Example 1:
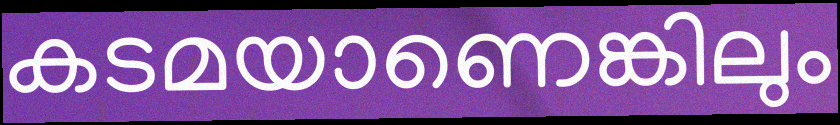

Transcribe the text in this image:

കടമയാണെങ്കിലും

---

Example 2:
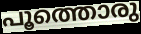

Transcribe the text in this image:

പൂത്തൊരു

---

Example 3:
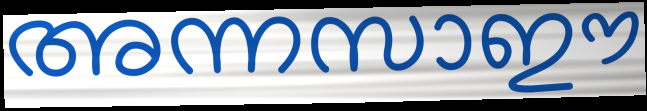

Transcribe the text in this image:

അന്നസാഈ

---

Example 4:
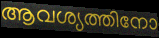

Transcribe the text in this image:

ആവശ്യത്തിനോ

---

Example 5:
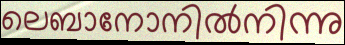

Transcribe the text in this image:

ലെബാനോനിൽനിന്നു